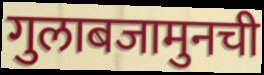
गुलाबजामुनची